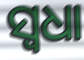
ସ୍ୱଧା